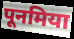
पूनमिया